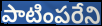
పాటింపరేని